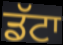
ਡੱਟਾ